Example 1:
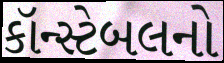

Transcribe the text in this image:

કૉન્સ્ટેબલનો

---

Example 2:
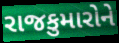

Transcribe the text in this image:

રાજકુમારોને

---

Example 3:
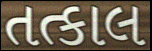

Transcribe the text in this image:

તત્કાલ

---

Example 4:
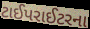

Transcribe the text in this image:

ટાઈપરાઈટરના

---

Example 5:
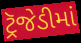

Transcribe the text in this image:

ટ્રૅજેડીમાં